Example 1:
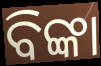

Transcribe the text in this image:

ବିଙ୍କା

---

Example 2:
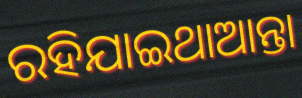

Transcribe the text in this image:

ରହିଯାଇଥାଆନ୍ତା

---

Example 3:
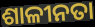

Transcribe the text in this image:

ଶାଳୀନତା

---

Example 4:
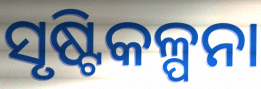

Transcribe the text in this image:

ସୃଷ୍ଟିକଳ୍ପନା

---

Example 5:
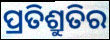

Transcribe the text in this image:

ପ୍ରତିଶ୍ରୁତିର